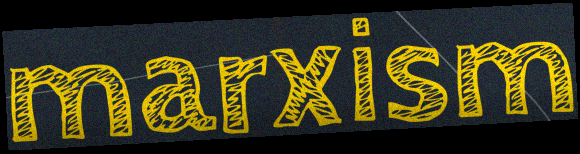
marxism